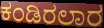
ಕಂಡಿರಲಾರ